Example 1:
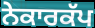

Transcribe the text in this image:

ਨੇਕਾਰਕੱਪ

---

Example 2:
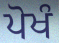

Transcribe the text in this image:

ਪੋਖੰ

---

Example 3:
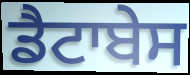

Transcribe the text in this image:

ਡੈਟਾਬੇਸ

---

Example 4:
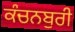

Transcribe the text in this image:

ਕੰਚਨਬੁਰੀ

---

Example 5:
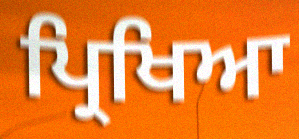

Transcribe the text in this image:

ਪ੍ਰਿਖਿਆ